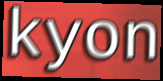
kyon